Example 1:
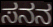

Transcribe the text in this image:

ಸನನ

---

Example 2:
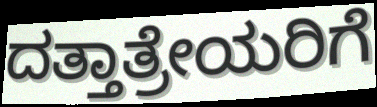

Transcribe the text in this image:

ದತ್ತಾತ್ರೇಯರಿಗೆ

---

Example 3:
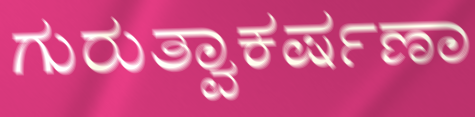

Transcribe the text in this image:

ಗುರುತ್ವಾಕರ್ಷಣಾ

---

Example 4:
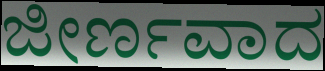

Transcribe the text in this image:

ಜೀರ್ಣವಾದ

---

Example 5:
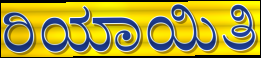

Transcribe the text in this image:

ರಿಯಾಯಿತಿ